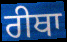
ਰੀਥਾ